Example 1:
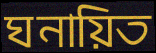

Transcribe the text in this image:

ঘনায়িত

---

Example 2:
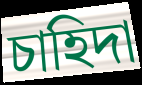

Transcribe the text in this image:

চাহিদা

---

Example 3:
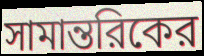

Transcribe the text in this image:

সামান্তরিকের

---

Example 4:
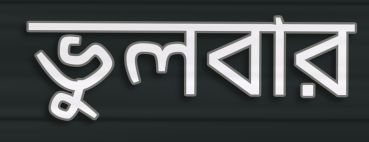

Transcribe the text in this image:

ভুলবার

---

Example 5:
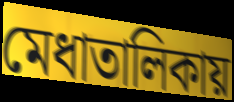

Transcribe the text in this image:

মেধাতালিকায়